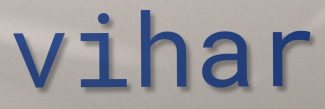
vihar